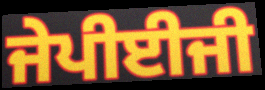
ਜੇਪੀਈਜੀ